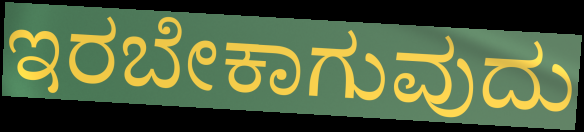
ಇರಬೇಕಾಗುವುದು